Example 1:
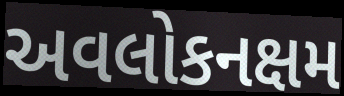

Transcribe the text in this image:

અવલોકનક્ષમ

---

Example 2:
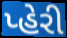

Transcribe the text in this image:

પ્હેરી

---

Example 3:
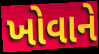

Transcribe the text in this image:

ખોવાને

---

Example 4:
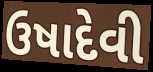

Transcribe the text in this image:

ઉષાદેવી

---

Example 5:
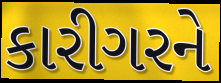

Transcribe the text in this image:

કારીગરને